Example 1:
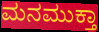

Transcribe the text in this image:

ಮನಮುಕ್ತಾ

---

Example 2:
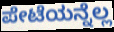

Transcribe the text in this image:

ಪೇಟೆಯನ್ನೆಲ್ಲ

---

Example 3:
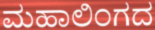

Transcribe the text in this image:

ಮಹಾಲಿಂಗದ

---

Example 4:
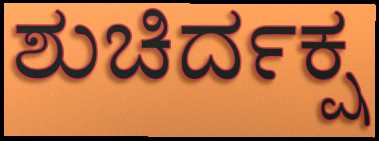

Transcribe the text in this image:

ಶುಚಿರ್ದಕ್ಷ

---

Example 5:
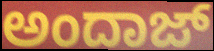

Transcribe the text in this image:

ಅಂದಾಜ್